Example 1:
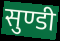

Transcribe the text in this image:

सुण्डी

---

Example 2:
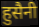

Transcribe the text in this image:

हुसैनी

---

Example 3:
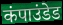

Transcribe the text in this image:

कंपाउंडेड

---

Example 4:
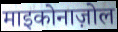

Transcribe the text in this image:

माइकोनाज़ोल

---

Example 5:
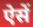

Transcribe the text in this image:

ऐसें